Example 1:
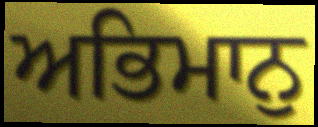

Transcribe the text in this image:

ਅਭਿਮਾਨੁ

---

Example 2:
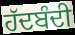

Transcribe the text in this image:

ਹੱਦਬੰਦੀ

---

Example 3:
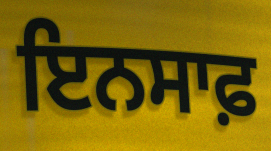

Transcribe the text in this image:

ਇਨਸਾਫ਼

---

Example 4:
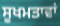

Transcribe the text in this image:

ਸੂਖਮਤਾਵਾਂ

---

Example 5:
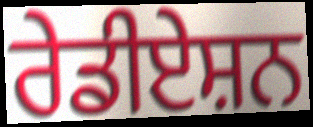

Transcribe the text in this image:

ਰੇਡੀਏਸ਼ਨ